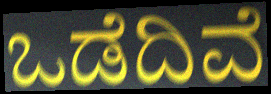
ಒಡೆದಿವೆ